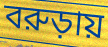
বরুড়ায়